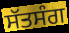
ਸੱਤਸੰਗ